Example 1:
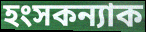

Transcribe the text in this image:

হংসকন্যাক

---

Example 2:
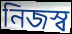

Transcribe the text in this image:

নিজস্ব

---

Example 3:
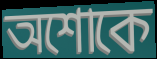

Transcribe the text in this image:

অশোকে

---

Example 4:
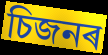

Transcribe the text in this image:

চিজনৰ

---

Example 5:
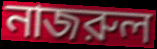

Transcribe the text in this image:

নাজৰুল